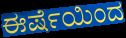
ಈರ್ಷೆಯಿಂದ